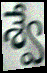
శ్వే